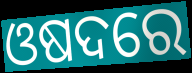
ଓଷଦରେ